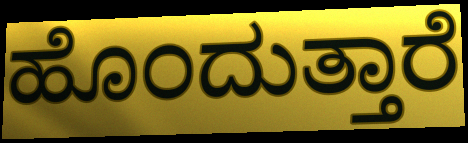
ಹೊಂದುತ್ತಾರೆ